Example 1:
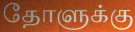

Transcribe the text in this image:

தோளுக்கு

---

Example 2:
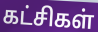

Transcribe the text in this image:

கட்சிகள்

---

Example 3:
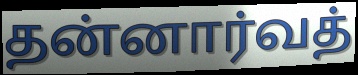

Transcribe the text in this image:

தன்னார்வத்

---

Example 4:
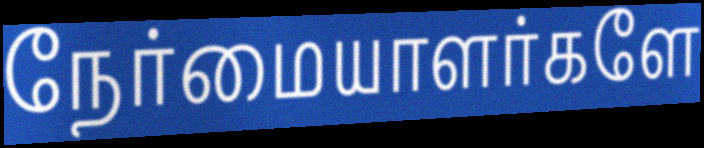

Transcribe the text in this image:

நேர்மையாளர்களே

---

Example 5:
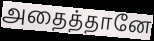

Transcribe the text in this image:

அதைத்தானே